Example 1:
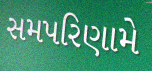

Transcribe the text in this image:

સમપરિણામે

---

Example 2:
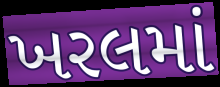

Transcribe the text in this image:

ખરલમાં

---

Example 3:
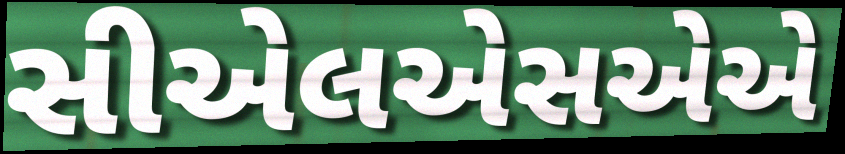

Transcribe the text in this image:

સીએલએસએએ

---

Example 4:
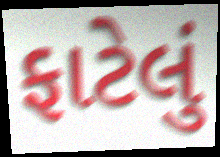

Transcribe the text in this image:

ફાટેલું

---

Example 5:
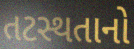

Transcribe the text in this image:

તટસ્થતાનો